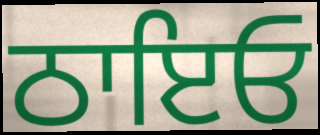
ਠਾਇਓ